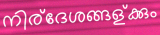
നിര്ദേശങ്ങള്ക്കും